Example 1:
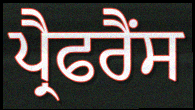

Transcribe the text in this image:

ਪ੍ਰੈਫਰੈਂਸ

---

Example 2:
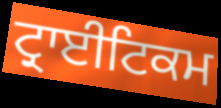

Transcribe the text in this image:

ਟ੍ਰਾਈਟਿਕਮ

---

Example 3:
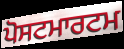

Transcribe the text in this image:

ਪੋਸਟਮਾਰਟਮ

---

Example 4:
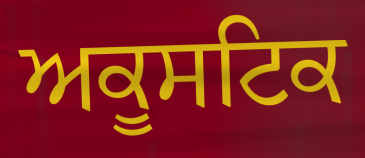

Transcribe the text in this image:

ਅਕੂਸਟਿਕ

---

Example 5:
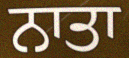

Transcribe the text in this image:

ਨਾਤਾ